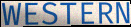
WESTERN